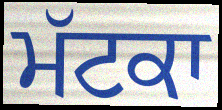
ਮੱਟਕਾ